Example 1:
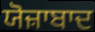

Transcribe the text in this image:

ਯੋਜ਼ਾਬਾਦ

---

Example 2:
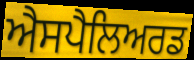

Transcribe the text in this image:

ਐਸਪੈਲਿਅਰਡ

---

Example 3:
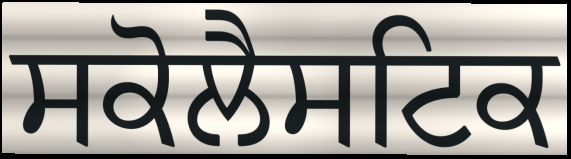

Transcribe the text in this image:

ਸਕੋਲੈਸਟਿਕ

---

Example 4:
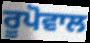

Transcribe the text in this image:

ਰੂਪੋਵਾਲ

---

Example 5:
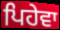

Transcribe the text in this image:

ਪਿਹੇਵਾ